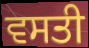
ਵਸਤੀ